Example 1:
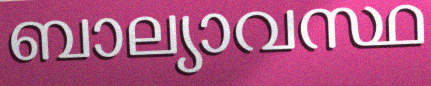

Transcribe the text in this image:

ബാല്യാവസ്ഥ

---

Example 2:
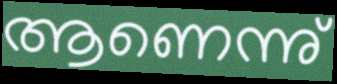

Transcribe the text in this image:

ആണെന്നു്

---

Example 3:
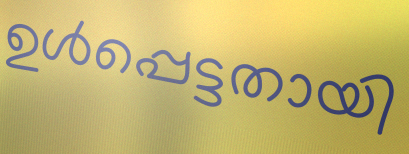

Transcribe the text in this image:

ഉൾപ്പെട്ടതായി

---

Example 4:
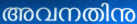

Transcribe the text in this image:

അവനതിനു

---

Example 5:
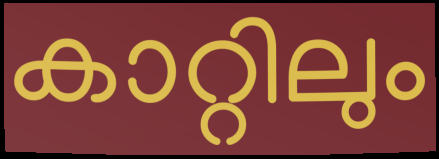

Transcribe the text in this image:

കാറ്റിലും